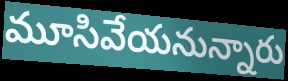
మూసివేయనున్నారు